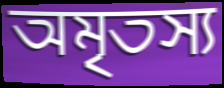
অমৃতস্য